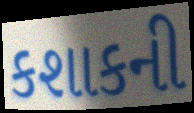
કશાકની